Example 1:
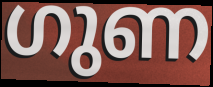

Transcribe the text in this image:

ഗുണ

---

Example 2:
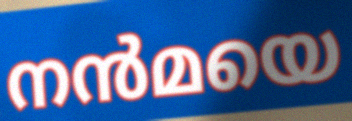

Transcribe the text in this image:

നൻമയെ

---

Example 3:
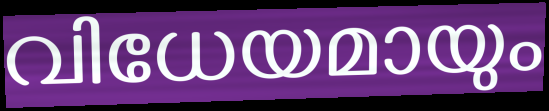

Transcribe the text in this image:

വിധേയമായും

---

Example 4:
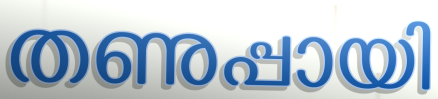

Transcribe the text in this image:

തണുപ്പായി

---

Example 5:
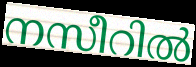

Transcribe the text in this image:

നസീറിൽ